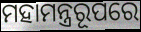
ମହାମନ୍ତ୍ରରୂପରେ